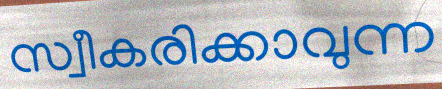
സ്വീകരിക്കാവുന്ന